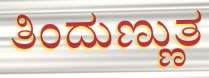
ತಿಂದುಣ್ಣುತ